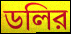
ডলির